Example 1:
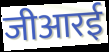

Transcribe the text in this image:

जीआरई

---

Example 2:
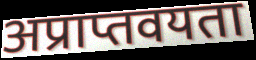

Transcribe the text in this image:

अप्राप्तवयता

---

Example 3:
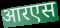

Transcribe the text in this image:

आरएस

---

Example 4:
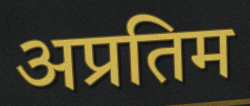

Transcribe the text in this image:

अप्रतिम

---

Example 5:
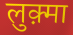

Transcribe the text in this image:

लुक़्मा